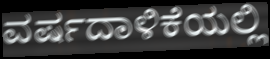
ವರ್ಷದಾಳಿಕೆಯಲ್ಲಿ